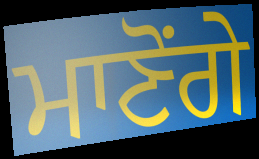
ਮਾਣੋਂਗੇ